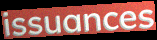
issuances